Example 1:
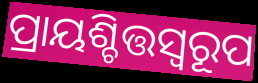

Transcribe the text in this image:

ପ୍ରାୟଶ୍ଚିତ୍ତସ୍ୱରୂପ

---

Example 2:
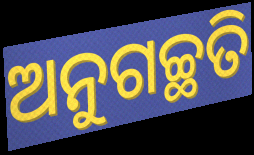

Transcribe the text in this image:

ଅନୁଗଚ୍ଛତି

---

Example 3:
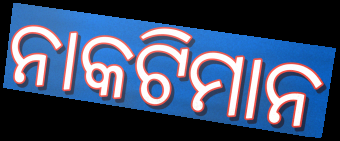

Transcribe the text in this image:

ନାକଟିମାନ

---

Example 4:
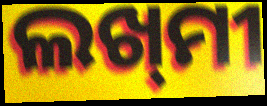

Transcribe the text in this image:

ଲଖ୍‌ମୀ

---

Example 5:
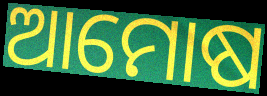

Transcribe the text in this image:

ଆମୋଷ